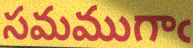
సమముగాఁ